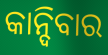
କାନ୍ଦିବାର